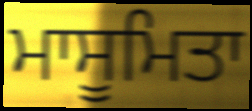
ਮਾਸੂਮਿਤਾ